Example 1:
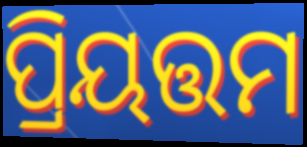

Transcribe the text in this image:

ପ୍ରିୟତ୍ତମ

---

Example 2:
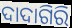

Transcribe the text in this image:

ଦାଦାଗିରି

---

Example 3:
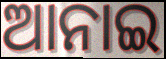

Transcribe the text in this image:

ଆନାଇ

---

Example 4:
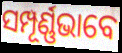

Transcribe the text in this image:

ସମ୍ପୂର୍ଣ୍ଣଭାବେ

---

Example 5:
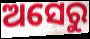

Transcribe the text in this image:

ଅସେରୁ